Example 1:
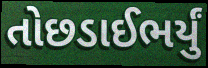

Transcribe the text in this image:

તોછડાઈભર્યું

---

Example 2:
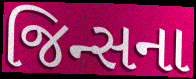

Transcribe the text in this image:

જિન્સના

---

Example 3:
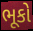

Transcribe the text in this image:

ભૂકો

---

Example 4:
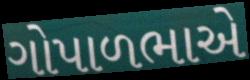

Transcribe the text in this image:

ગોપાળભાએ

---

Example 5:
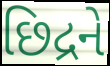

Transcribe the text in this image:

છિદ્રને